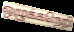
ஒழுக்கநெறி